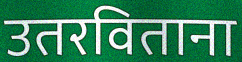
उतरविताना